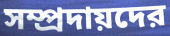
সম্প্রদায়দের